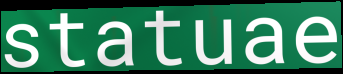
statuae